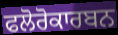
ਫਲੋਰੋਕਾਰਬਨ